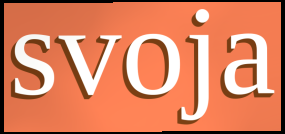
svoja